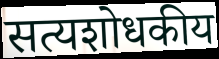
सत्यशोधकीय